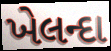
ખેલન્દા